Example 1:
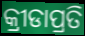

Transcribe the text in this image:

କ୍ରୀଡାପ୍ରତି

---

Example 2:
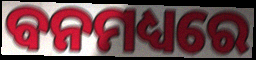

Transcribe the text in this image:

ବନମଧ୍ୟରେ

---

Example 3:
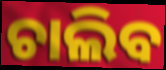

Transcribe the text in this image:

ଚାଲିବ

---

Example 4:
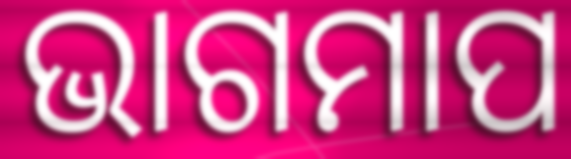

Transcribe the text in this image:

ଭାଗମାପ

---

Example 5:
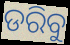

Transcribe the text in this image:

ଡରିବୁ